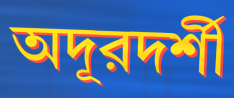
অদূরদর্শী